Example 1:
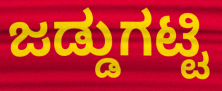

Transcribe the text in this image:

ಜಡ್ಡುಗಟ್ಟಿ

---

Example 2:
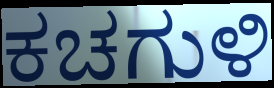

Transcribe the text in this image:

ಕಚಗುಳಿ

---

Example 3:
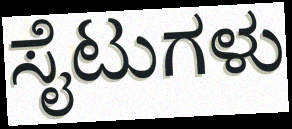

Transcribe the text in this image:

ಸೈಟುಗಳು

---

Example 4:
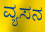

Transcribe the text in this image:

ವ್ಯಸನ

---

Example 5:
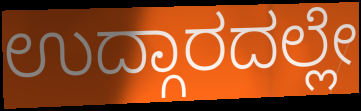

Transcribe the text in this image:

ಉದ್ಗಾರದಲ್ಲೇ